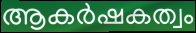
ആകർഷകത്വം